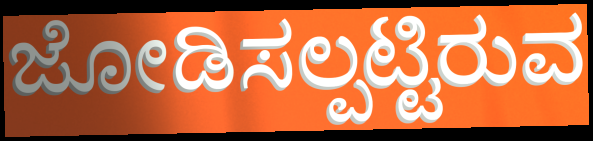
ಜೋಡಿಸಲ್ಪಟ್ಟಿರುವ